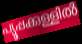
പ്യൂപ്പക്കുള്ളിൽ